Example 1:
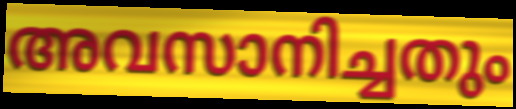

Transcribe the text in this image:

അവസാനിച്ചതും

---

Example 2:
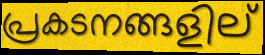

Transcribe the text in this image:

പ്രകടനങ്ങളില്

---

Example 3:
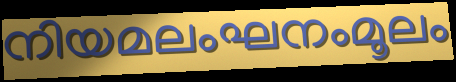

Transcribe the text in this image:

നിയമലംഘനംമൂലം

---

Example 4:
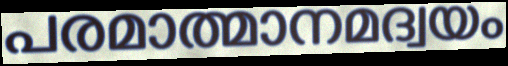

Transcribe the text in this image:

പരമാത്മാനമദ്വയം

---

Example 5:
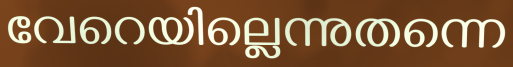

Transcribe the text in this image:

വേറെയില്ലെന്നുതന്നെ